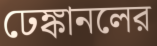
ঢেঙ্কানলের